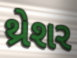
થ્રેશર